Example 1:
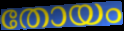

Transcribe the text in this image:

തോയം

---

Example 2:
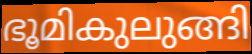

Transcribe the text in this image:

ഭൂമികുലുങ്ങി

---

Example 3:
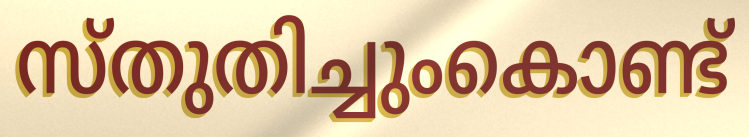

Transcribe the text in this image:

സ്തുതിച്ചുംകൊണ്ട്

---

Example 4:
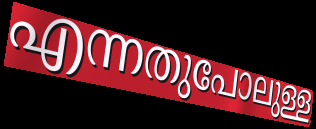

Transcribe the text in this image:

എന്നതുപോലുള്ള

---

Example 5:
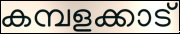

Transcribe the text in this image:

കമ്പളക്കാട്